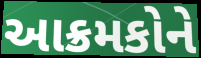
આક્રમકોને